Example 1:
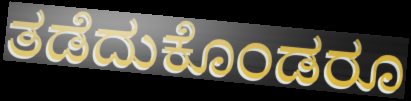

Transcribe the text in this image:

ತಡೆದುಕೊಂಡರೂ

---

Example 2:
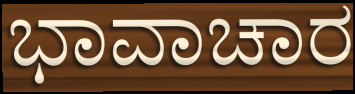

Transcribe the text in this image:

ಭಾವಾಚಾರ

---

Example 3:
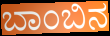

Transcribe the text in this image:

ಬಾಂಬಿನ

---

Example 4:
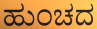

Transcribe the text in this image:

ಹುಂಚದ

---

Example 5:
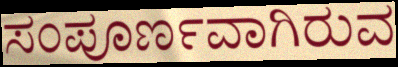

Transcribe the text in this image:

ಸಂಪೂರ್ಣವಾಗಿರುವ